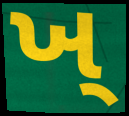
ખ્